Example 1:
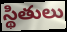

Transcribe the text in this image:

స్థితులు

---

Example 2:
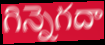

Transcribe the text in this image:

గిన్నెగదా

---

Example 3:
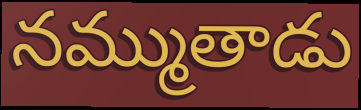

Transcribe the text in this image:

నమ్ముతాడు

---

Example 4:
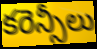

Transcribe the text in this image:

కరెన్సీలు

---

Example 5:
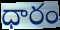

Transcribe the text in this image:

ధారం